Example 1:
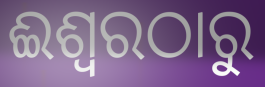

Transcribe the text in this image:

ଈଶ୍ୱରଠାରୁ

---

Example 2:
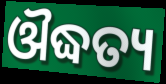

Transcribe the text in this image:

ଔଦ୍ଧତ୍ୟ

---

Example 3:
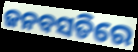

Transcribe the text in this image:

ଜନବସତିରେ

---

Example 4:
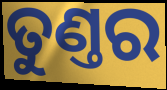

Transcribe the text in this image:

ତୁଣ୍ତର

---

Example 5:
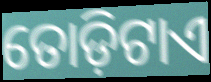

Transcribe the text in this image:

ତୋଡ଼ିଟାଏ